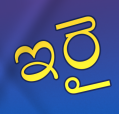
ఇరై